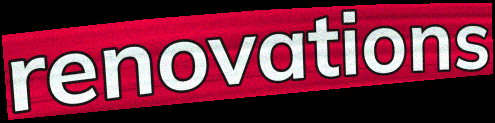
renovations